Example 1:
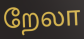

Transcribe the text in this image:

றேலா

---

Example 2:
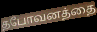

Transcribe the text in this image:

தபோவனத்தை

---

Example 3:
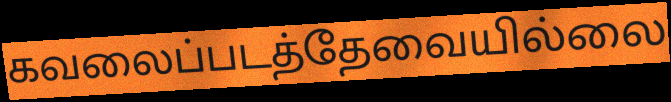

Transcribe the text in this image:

கவலைப்படத்தேவையில்லை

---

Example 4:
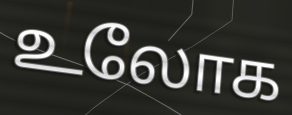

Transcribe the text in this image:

உலோக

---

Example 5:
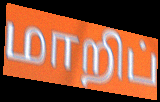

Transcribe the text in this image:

மாறிப்